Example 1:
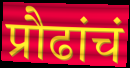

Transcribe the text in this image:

प्रौढांचं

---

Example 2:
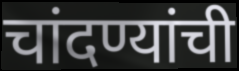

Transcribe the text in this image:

चांदण्यांची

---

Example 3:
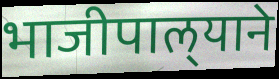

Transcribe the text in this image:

भाजीपाल्याने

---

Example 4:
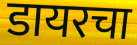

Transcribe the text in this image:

डायरचा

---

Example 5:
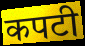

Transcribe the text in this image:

कपटी